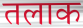
तलाक